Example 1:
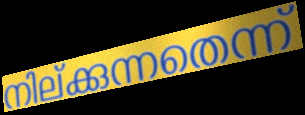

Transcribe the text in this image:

നില്ക്കുന്നതെന്ന്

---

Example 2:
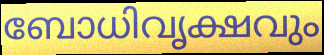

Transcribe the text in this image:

ബോധിവൃക്ഷവും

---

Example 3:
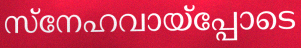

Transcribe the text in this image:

സ്നേഹവായ്പ്പോടെ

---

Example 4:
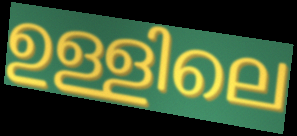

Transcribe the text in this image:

ഉള്ളിലെ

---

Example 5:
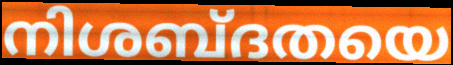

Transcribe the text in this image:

നിശബ്ദതയെ